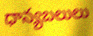
ధాన్యబలులు